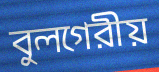
বুলগেরীয়